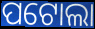
ପଟୋଲା